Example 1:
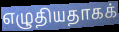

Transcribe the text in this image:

எழுதியதாகக்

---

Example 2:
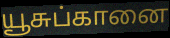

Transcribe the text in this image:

யூசுப்கானை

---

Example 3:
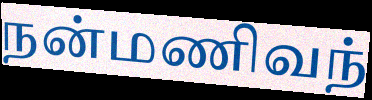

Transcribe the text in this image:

நன்மணிவந்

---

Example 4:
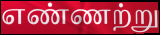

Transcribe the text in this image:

எண்ணற்று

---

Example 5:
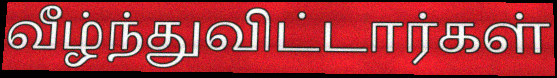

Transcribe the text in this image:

வீழ்ந்துவிட்டார்கள்